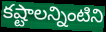
కష్టాలన్నింటిని